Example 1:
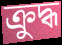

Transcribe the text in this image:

ক্রুদ্ধ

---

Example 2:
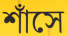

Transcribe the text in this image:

শাঁসে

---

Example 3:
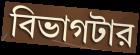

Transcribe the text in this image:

বিভাগটার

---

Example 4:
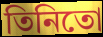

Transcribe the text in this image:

তিনিতো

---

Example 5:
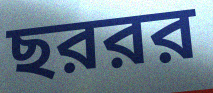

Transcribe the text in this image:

ছররর